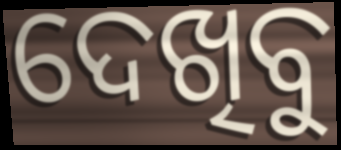
ଦେଖିବୁ